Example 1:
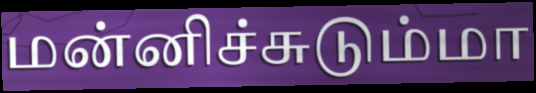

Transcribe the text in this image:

மன்னிச்சுடும்மா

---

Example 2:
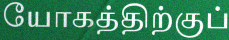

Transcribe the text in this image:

யோகத்திற்குப்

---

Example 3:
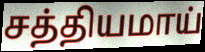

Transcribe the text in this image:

சத்தியமாய்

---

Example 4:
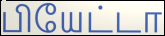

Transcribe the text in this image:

பியேட்டா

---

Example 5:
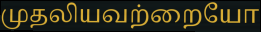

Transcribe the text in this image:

முதலியவற்றையோ